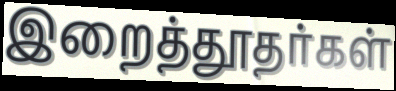
இறைத்தூதர்கள்